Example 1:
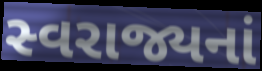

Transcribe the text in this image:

સ્વરાજ્યનાં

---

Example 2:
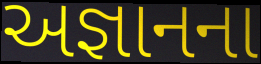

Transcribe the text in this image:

અજ્ઞાનના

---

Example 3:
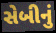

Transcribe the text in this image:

સેબીનું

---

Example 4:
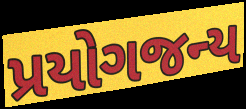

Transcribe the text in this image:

પ્રયોગજન્ય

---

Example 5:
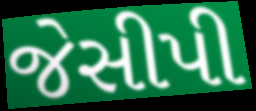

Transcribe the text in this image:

જેસીપી